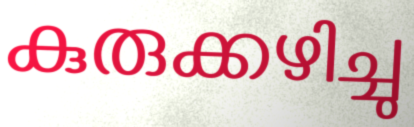
കുരുക്കഴിച്ചു